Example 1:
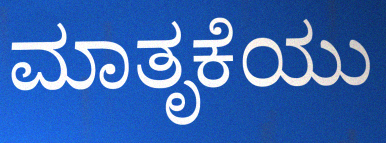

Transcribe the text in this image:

ಮಾತೃಕೆಯು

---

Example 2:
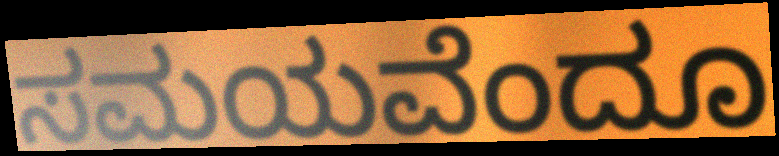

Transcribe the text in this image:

ಸಮಯವೆಂದೂ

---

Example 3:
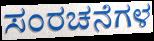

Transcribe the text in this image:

ಸಂರಚನೆಗಳ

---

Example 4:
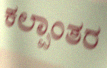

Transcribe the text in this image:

ಕಲ್ಪಾಂತರ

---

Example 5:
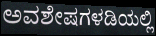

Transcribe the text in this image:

ಅವಶೇಷಗಳಡಿಯಲ್ಲಿ